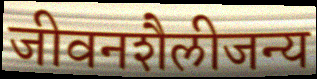
जीवनशैलीजन्य